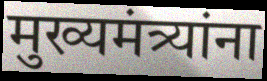
मुख्यमंत्र्यांना